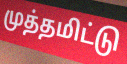
முத்தமிட்டு